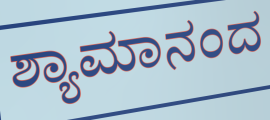
ಶ್ಯಾಮಾನಂದ